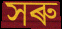
সৰু